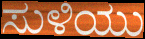
ಸುಳಿಯು